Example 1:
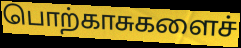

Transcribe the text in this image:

பொற்காசுகளைச்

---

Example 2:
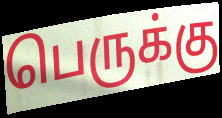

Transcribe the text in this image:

பெருக்கு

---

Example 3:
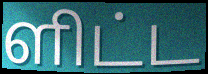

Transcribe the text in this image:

ளிட்ட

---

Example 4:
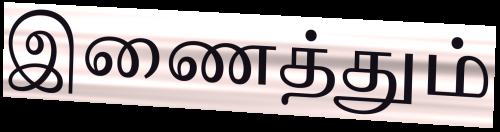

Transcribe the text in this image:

இணைத்தும்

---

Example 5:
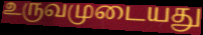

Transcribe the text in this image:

உருவமுடையது